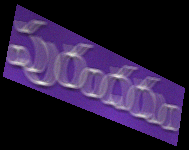
పురందరుం